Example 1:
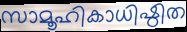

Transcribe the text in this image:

സാമൂഹികാധിഷ്ഠിത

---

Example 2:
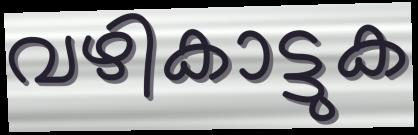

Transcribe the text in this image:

വഴികാട്ടുക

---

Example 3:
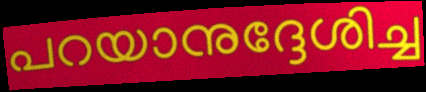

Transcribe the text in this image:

പറയാനുദ്ദേശിച്ച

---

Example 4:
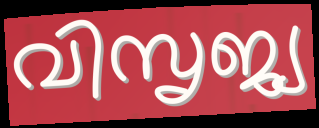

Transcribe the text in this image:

വിസൃജ്യ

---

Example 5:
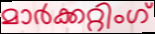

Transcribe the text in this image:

മാർക്കറ്റിംഗ്